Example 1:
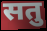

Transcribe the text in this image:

सतु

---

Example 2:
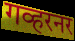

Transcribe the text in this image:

गव्हरनर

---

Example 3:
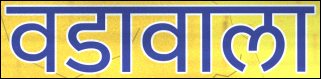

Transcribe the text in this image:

वडावाला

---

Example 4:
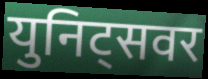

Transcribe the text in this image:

युनिट्सवर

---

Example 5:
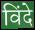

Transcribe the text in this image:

विंदे